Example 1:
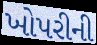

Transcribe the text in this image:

ખોપરીની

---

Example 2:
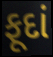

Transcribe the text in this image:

ફૂદાં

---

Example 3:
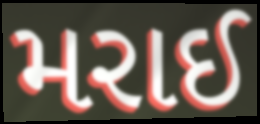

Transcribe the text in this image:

મરાઈ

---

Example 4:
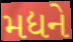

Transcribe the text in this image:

મદ્યને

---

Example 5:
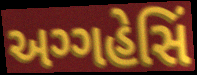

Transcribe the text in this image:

અગ્ગહેસિં